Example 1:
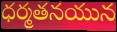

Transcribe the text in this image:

ధర్మతనయున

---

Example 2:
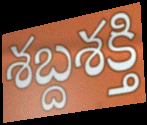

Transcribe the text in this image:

శబ్దశక్తి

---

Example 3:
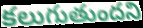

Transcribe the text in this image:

కలుగుతుందని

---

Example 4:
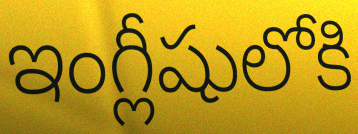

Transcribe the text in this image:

ఇంగ్లీషులోకి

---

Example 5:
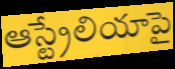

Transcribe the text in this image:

ఆస్ట్రేలియాపై